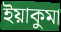
ইয়াকুমা